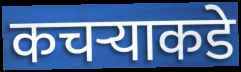
कचऱ्याकडे